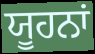
ਯੂਹਨਾਂ